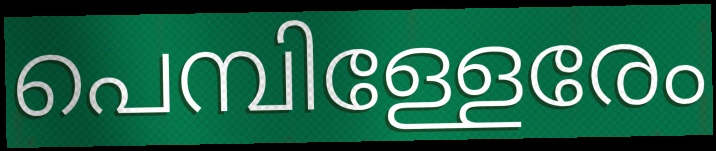
പെമ്പിള്ളേരേം